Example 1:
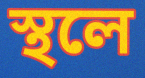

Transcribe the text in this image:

স্থলে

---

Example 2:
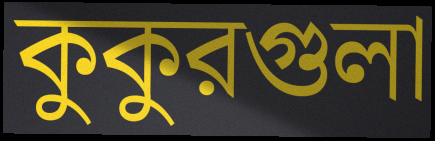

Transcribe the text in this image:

কুকুরগুলা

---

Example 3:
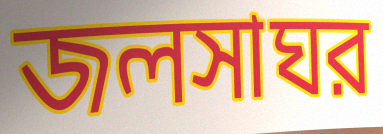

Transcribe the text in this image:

জলসাঘর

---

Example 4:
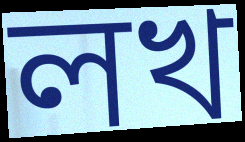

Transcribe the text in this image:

লখ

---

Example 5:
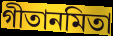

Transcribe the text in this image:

গীতানমিতা